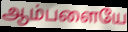
ஆம்பளையே